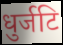
धुर्जटि